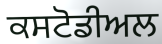
ਕਸਟੋਡੀਅਲ